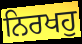
ਨਿਰਖਹੁ